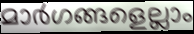
മാർഗങ്ങളെല്ലാം